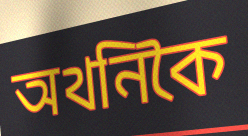
অথনিকৈ